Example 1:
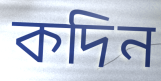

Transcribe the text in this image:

কদিন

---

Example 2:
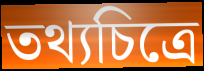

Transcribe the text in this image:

তথ্যচিত্রে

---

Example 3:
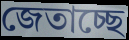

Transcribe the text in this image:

জেতাচ্ছে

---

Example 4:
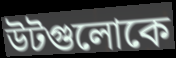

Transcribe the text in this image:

উটগুলোকে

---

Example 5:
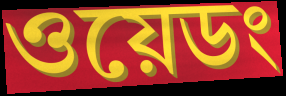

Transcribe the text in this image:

ওয়েডং